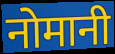
नोमानी